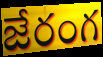
జేరంగ